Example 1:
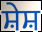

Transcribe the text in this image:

ਸ਼ੇਸ਼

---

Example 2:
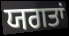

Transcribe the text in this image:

ਯਗਤਾਂ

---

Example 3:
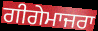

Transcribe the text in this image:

ਗੀਗੇਮਾਜਰਾ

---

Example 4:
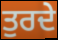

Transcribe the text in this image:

ਤੁਰਦੇ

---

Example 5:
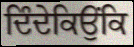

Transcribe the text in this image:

ਦਿੰਦੇਕਿਉਂਕਿ